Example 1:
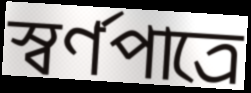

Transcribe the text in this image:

স্বর্ণপাত্রে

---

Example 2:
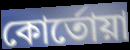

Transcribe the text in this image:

কোর্তোয়া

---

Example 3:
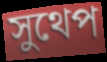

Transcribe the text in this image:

সুথেপ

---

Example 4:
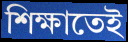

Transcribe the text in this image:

শিক্ষাতেই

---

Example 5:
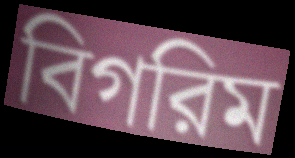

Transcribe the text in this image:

বিগরিম